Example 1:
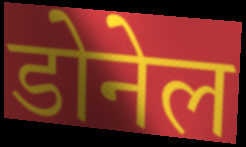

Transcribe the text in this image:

डोनेल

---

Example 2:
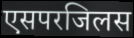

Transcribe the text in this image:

एसपरजिलस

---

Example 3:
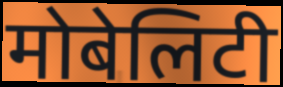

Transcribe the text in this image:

मोबेलिटी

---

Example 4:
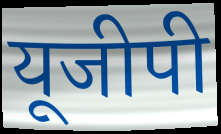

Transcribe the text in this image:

यूजीपी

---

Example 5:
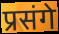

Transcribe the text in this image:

प्रसंगे